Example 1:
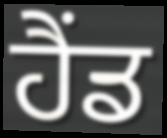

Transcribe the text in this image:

ਹੈਂਡ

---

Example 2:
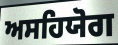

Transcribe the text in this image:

ਅਸਹਿਯੋਗ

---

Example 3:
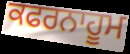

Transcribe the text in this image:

ਕਫਰਨਾਹੂਮ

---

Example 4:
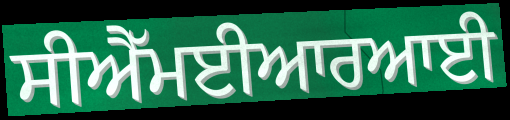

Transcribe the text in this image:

ਸੀਐੱਮਈਆਰਆਈ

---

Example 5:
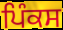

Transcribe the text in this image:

ਪਿੰਕਸ